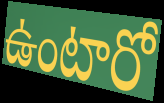
ఉంటారో